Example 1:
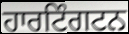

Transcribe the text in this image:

ਹਾਰਟਿੰਗਟਨ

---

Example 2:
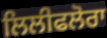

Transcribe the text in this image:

ਲਿਲੀਫਲੋਰਾ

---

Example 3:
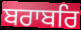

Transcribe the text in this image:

ਬਰਾਬਰਿ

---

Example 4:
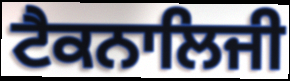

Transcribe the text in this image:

ਟੈਕਨਾਲਿਜੀ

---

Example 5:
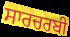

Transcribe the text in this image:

ਸਾਰਚਰਬੀ